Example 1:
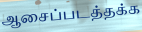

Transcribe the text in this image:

ஆசைப்படத்தக்க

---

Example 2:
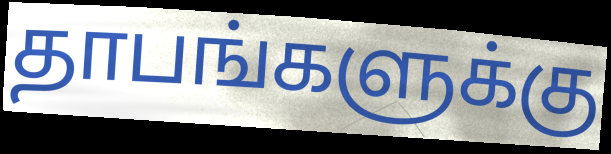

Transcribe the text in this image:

தாபங்களுக்கு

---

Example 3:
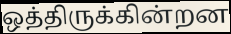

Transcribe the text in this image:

ஒத்திருக்கின்றன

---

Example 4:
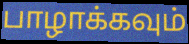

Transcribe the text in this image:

பாழாக்கவும்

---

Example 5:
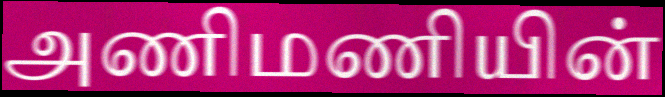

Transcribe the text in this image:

அணிமணியின்